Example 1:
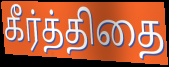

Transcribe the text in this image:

கீர்த்திதை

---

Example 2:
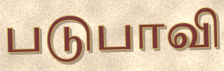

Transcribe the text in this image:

படுபாவி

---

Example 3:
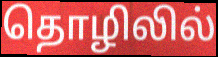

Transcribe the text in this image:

தொழிலில்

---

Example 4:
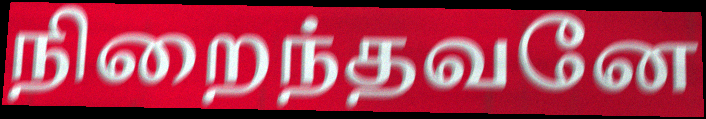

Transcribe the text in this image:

நிறைந்தவனே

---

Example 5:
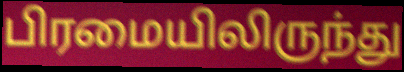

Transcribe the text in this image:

பிரமையிலிருந்து